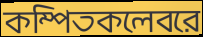
কম্পিতকলেবরে